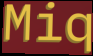
Miq